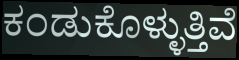
ಕಂಡುಕೊಳ್ಳುತ್ತಿವೆ